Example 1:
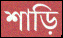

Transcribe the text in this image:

শাড়ি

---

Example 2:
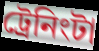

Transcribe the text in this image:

ট্রেনিংটা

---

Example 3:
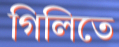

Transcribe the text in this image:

গিলিতে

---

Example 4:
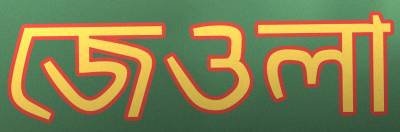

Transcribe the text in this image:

জেওলা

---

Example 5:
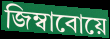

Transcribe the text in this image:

জিম্বাবোয়ে